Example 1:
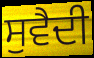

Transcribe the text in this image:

ਸੁਵੈਦੀ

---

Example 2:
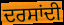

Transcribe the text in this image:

ਦਰਸਾਂਦੀ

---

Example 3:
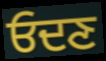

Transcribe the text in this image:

ਓਦਣ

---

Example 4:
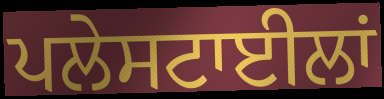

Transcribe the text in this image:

ਪਲੇਸਟਾਈਲਾਂ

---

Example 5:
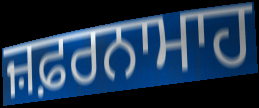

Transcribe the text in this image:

ਜ਼ਫ਼ਰਨਾਮਾਹ